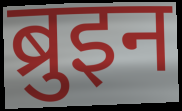
ब्रुइन